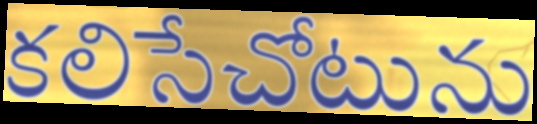
కలిసేచోటును